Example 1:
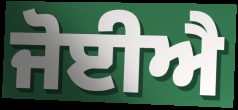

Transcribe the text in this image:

ਜੋਈਐ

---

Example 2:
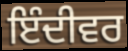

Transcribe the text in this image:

ਇੰਦੀਵਰ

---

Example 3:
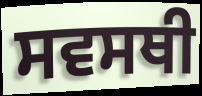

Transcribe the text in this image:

ਸਵਸਥੀ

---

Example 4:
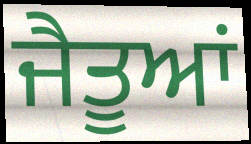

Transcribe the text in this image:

ਜੈਤੂਆਂ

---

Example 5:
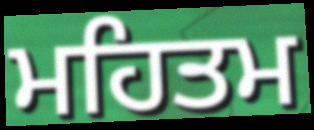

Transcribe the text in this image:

ਮਹਿਤਮ